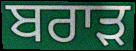
ਬਰਾਡ਼